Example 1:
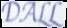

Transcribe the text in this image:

DALL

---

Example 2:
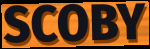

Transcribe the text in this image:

SCOBY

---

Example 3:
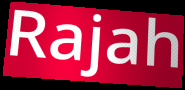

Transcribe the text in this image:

Rajah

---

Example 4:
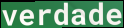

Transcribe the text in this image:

verdade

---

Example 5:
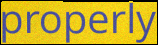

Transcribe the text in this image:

properly